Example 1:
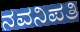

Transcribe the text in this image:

ನವನಿಪತಿ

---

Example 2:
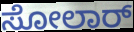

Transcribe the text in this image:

ಸೋಲಾರ್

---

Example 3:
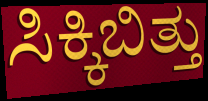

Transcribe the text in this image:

ಸಿಕ್ಕಿಬಿತ್ತು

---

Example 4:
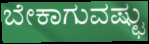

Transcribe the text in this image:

ಬೇಕಾಗುವಷ್ಟು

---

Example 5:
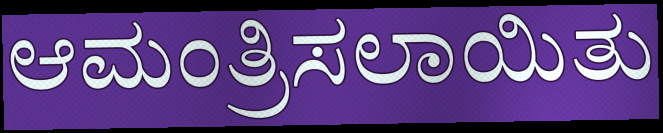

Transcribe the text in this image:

ಆಮಂತ್ರಿಸಲಾಯಿತು